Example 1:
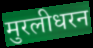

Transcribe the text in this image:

मुरलीधरन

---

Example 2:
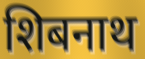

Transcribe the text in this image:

शिबनाथ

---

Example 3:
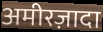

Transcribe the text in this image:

अमीरज़ादा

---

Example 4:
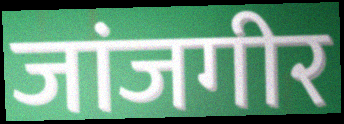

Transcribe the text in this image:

जांजगीर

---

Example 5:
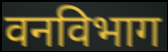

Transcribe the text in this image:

वनविभाग